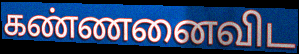
கண்ணனைவிட